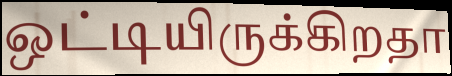
ஒட்டியிருக்கிறதா